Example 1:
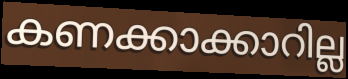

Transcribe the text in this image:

കണക്കാക്കാറില്ല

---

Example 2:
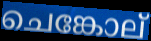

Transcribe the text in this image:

ചെങ്കോല്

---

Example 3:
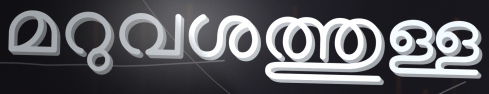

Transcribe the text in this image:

മറുവശത്തുള്ള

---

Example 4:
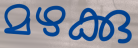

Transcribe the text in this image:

മഴക്കു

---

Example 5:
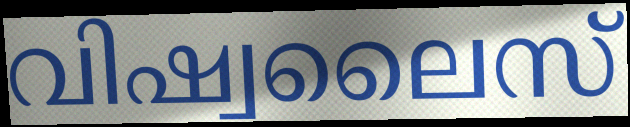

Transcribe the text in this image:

വിഷ്വലൈസ്